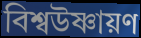
বিশ্বউষ্ণায়ণ